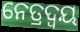
ନେତ୍ରଦ୍ଵୟ